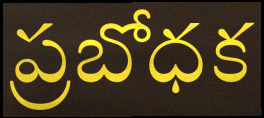
ప్రబోధక